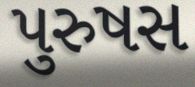
પુરુષસ